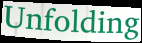
Unfolding